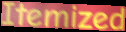
Itemized